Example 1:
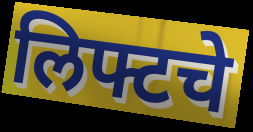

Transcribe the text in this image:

लिफ्टचे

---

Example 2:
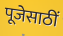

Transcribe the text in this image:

पूजेसाठीं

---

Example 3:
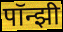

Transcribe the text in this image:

पॉन्झी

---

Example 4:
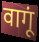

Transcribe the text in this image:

वागूं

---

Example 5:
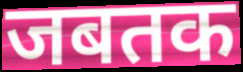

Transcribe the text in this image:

जबतक